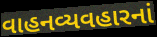
વાહનવ્યવહારનાં